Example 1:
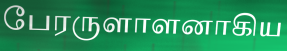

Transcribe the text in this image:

பேரருளாளனாகிய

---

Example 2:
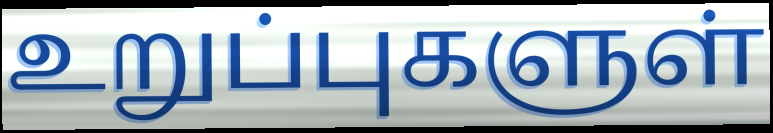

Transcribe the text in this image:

உறுப்புகளுள்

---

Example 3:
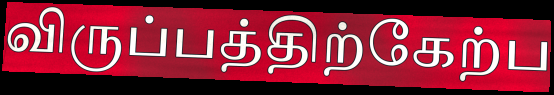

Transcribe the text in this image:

விருப்பத்திற்கேற்ப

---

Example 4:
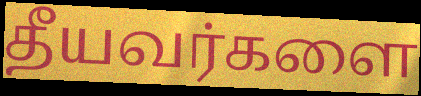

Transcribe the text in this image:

தீயவர்களை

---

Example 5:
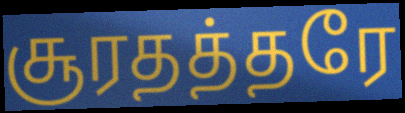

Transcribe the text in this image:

சூரதத்தரே